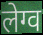
लेग्व